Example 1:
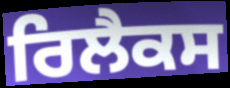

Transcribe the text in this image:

ਰਿਲੈਕਸ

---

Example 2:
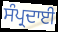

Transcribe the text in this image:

ਸੰਪ੍ਰਦਾਈ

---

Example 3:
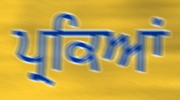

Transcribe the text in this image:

ਪ੍ਰਕਿਆਂ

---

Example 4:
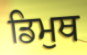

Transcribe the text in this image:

ਡਿਮੁਥ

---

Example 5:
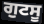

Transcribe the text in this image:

ਗੁਟਸੂ